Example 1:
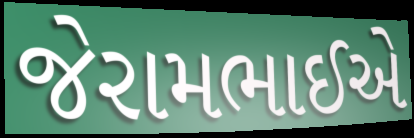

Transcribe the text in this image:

જેરામભાઈએ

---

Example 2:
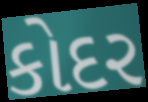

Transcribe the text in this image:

કોદર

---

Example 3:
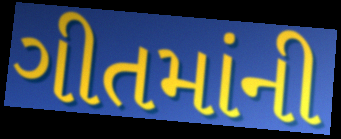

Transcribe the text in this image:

ગીતમાંની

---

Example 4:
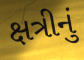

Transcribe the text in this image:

ક્ષત્રીનું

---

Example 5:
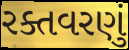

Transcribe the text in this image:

રક્તવરણું